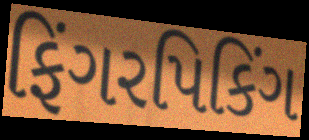
ફિંગરપિકિંગ